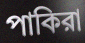
পাকিরা